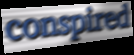
conspired